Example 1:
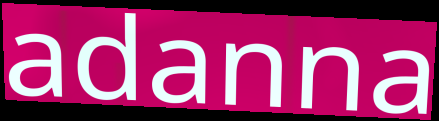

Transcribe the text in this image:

adanna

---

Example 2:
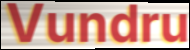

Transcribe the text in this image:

Vundru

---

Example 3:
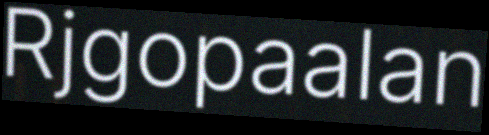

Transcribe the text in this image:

Rjgopaalan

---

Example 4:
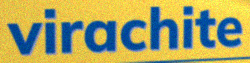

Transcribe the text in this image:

virachite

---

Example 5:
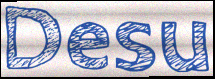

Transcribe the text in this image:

Desu